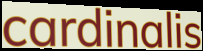
cardinalis